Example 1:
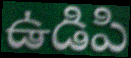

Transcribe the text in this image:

ఉడిపి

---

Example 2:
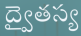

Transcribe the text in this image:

ద్వైతస్య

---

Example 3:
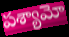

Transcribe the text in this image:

పశ్యామో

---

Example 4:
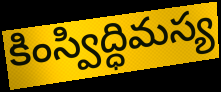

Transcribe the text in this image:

కింస్విద్ధిమస్య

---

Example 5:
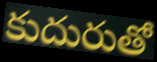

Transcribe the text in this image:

కుదురుతో